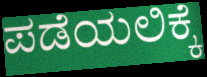
ಪಡೆಯಲಿಕ್ಕೆ